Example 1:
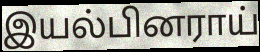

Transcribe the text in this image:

இயல்பினராய்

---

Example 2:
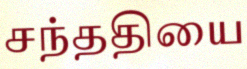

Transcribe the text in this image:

சந்ததியை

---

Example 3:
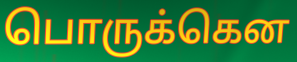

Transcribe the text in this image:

பொருக்கென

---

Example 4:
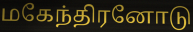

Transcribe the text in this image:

மகேந்திரனோடு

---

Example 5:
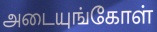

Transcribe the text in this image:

அடையுங்கோள்